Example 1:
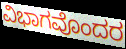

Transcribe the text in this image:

ವಿಭಾಗವೊಂದರ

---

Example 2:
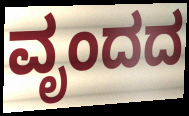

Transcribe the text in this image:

ವೃಂದದ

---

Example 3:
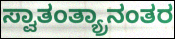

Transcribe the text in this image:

ಸ್ವಾತಂತ್ಯ್ರಾನಂತರ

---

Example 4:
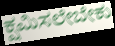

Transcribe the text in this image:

ಕ್ಷಮಿಸಲೇಬೇಕು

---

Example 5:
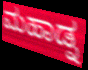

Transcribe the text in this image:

ಮಹಾಡ್ನ